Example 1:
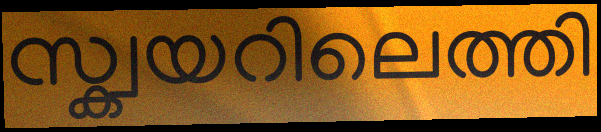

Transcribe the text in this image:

സ്ക്വയറിലെത്തി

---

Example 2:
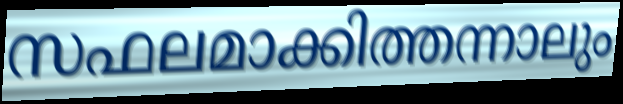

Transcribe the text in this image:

സഫലമാക്കിത്തന്നാലും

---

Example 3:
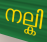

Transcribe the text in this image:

നല്കി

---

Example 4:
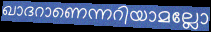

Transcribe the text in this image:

ഖാദറാണെന്നറിയാമല്ലോ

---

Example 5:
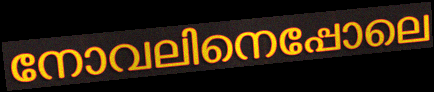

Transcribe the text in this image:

നോവലിനെപ്പോലെ